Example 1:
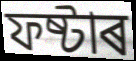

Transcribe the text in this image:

ফষ্টাৰ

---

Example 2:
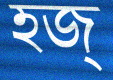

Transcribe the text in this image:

হজ্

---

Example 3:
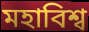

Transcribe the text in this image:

মহাবিশ্ব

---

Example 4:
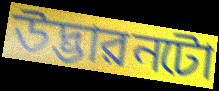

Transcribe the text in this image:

উদ্ভাৱনটো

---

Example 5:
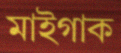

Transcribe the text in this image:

মাইগাক